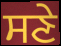
ਸਣੇ